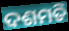
ଦଶମତି